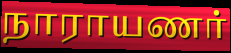
நாராயணர்